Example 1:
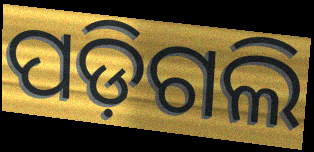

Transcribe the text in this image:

ପଡ଼ିଗଲି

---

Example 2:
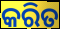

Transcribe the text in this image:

କରିତ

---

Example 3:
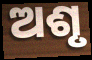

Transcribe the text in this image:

ଅଶୃ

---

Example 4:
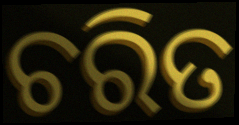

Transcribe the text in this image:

ଚରିତ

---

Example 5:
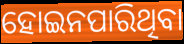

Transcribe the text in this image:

ହୋଇନପାରିଥିବା